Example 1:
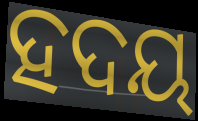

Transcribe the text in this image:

ହଦୟ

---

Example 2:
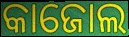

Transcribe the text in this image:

କାଜୋଲ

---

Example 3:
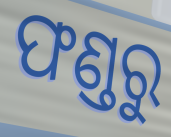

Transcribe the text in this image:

ଫଣ୍ଡରୁ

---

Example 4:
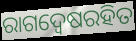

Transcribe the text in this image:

ରାଗଦ୍ୱେଷରହିତ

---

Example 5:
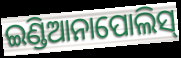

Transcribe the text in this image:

ଇଣ୍ଡିଆନାପୋଲିସ୍